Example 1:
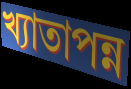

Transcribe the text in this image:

খ্যাতাপন্ন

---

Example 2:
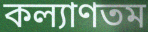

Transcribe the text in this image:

কল্যাণতম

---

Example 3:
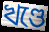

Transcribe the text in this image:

খণ্ডে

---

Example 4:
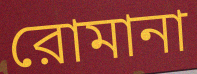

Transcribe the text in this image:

রোমানা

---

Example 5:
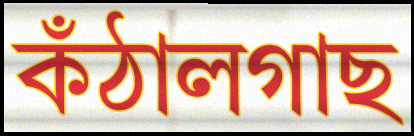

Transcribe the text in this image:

কঁঠালগাছ